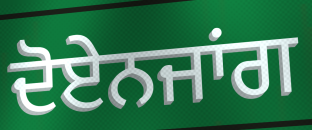
ਦੋਏਨਜਾਂਗ